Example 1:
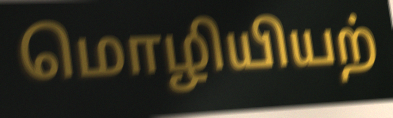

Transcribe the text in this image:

மொழியியற்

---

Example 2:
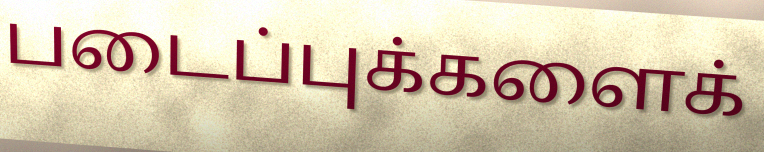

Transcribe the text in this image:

படைப்புக்களைக்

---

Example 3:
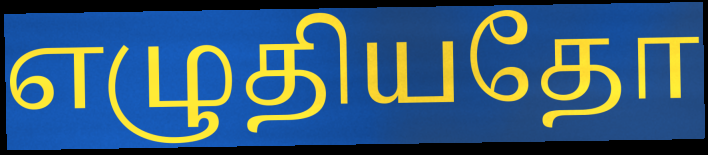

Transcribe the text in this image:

எழுதியதோ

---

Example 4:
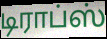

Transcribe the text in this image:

டிராப்ஸ்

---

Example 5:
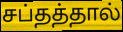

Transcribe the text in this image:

சப்தத்தால்